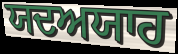
ਯਦਅਯਾਹ